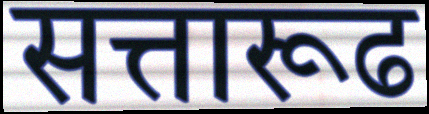
सत्तारूढ